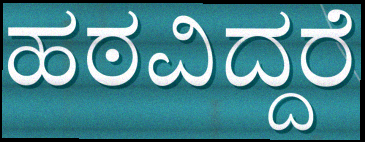
ಹಠವಿದ್ದರೆ